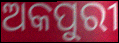
ଅକପୁରୀ